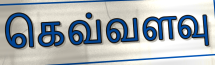
கெவ்வளவு